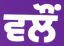
ਵਲੌਂ